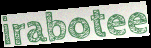
irabotee